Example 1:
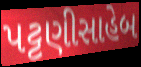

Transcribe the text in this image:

પટ્ટણીસાહેબ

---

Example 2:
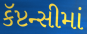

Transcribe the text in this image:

કૅપ્ટન્સીમાં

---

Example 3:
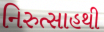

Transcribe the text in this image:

નિરુત્સાહથી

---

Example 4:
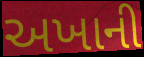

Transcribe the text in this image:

અખાની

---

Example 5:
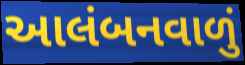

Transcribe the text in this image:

આલંબનવાળું